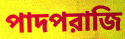
পাদপরাজি